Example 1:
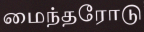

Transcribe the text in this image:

மைந்தரோடு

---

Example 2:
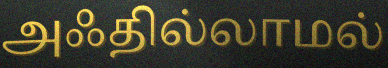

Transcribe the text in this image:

அஃதில்லாமல்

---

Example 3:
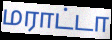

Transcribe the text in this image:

மராட்டா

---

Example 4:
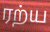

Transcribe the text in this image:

ரற்ய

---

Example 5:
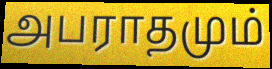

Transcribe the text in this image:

அபராதமும்